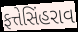
ફત્તેસિંહરાવ